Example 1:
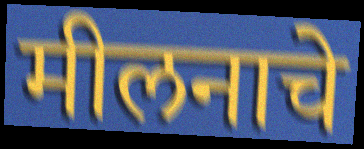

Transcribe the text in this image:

मीलनाचे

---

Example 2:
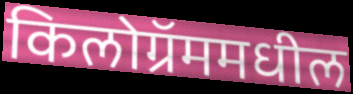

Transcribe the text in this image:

किलोग्रॅममधील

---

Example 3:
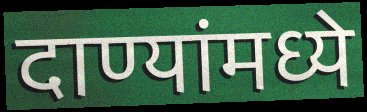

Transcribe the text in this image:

दाण्यांमध्ये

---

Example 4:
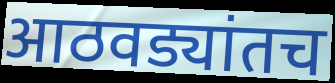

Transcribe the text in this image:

आठवड्यांतच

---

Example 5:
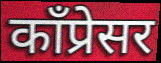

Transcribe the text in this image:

काँप्रेसर